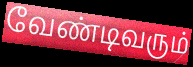
வேண்டிவரும்